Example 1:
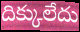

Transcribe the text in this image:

దిక్కులేదు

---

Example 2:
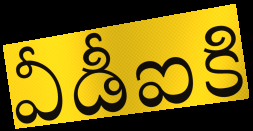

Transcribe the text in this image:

వీడీఐకి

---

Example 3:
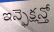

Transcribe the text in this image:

ఇన్ఫెక్షన్తో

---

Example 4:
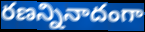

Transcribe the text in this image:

రణన్నినాదంగా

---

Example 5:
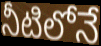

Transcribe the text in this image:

నీటిలోనే